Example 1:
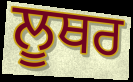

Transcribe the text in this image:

ਲੂਥਰ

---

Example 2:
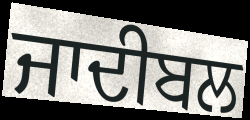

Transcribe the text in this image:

ਜਾਦੀਬਲ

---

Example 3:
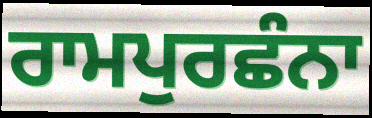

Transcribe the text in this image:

ਰਾਮਪੁਰਛੰਨਾ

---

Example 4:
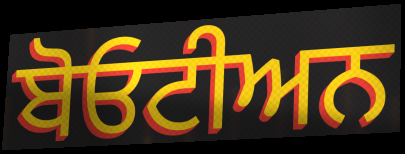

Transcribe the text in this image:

ਬੋਓਟੀਅਨ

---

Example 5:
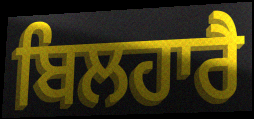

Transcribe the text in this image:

ਬਿਲਹਾਰੈ